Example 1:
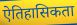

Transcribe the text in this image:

ऐतिहासिकता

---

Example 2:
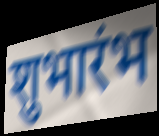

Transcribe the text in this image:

शुभारंभ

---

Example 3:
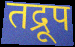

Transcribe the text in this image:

तद्रूप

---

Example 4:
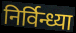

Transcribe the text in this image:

निर्विन्ध्या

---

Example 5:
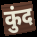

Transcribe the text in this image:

कुंद